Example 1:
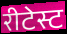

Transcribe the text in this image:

रीटेस्ट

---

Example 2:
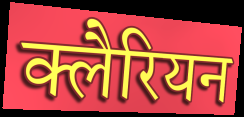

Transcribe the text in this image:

क्लैरियन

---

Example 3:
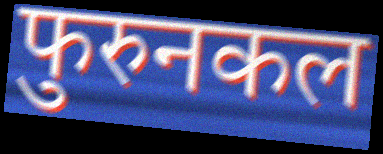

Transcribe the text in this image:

फुरुनकल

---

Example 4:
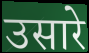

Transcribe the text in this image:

उसारे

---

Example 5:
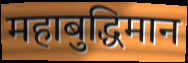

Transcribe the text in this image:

महाबुद्धिमान